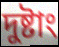
দুষ্টাং